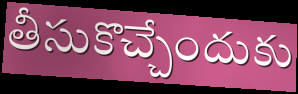
తీసుకొచ్చేందుకు